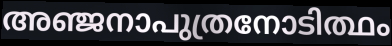
അഞ്ജനാപുത്രനോടിത്ഥം